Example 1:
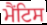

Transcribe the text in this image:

ਮੈਂਟਿਸ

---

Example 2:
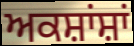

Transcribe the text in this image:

ਅਕਸ਼ਾਂਸ਼ਾਂ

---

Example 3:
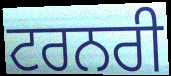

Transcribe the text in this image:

ਟਰਨਰੀ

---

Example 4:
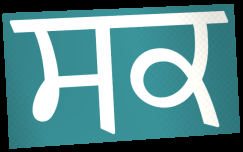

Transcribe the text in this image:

ਸਕ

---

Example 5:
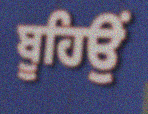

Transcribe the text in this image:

ਬੂਹਿਉਂ